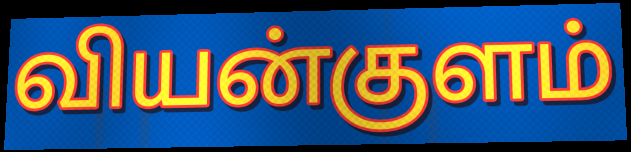
வியன்குளம்